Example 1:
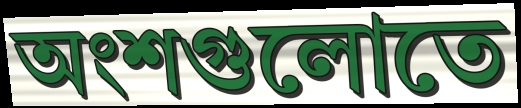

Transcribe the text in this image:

অংশগুলোতে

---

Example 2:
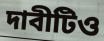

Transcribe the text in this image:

দাবীটিও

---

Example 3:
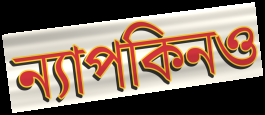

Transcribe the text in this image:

ন্যাপকিনও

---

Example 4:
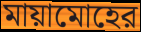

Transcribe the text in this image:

মায়ামোহের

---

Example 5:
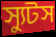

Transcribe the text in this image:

স্যুটস